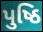
પુષ્ઠિ